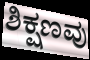
ಶಿಕ್ಷಣವು